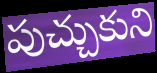
పుచ్చుకుని